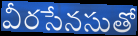
వీరసేనసుతో